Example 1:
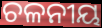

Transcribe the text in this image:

ଚଳନୀୟ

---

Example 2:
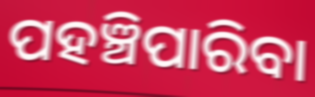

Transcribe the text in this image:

ପହଞ୍ଚିପାରିବା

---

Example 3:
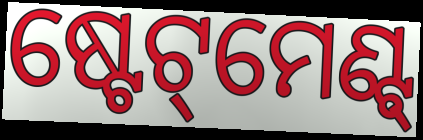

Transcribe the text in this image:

ଷ୍ଟେଟ୍‌ମେଣ୍ଟ୍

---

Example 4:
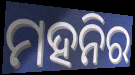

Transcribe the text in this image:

ମହନିର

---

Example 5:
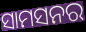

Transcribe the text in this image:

ସାମସନର